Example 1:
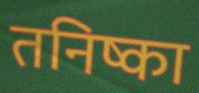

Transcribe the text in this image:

तनिष्का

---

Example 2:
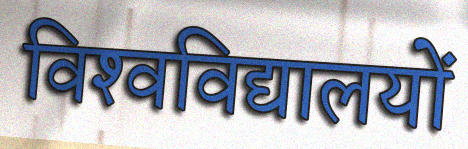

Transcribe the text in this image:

विश्‍वविद्यालयों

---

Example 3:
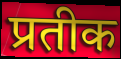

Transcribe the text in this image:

प्रतीक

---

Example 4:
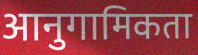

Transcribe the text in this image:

आनुगामिकता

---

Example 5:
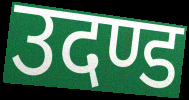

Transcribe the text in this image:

उदण्ड